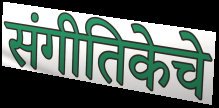
संगीतिकेचे